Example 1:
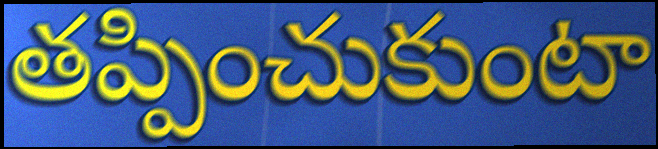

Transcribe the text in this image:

తప్పించుకుంటా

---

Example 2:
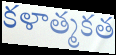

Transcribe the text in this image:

కళాత్మకత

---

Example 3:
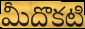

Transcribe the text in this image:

మీదొకటి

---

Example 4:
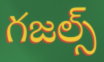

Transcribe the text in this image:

గజల్స్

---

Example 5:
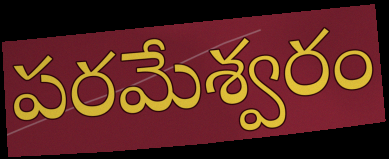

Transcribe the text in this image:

పరమేశ్వరం